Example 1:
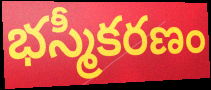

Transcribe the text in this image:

భస్మీకరణం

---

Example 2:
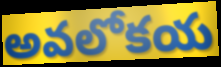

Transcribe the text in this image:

అవలోకయ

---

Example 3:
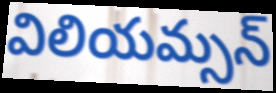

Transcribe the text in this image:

విలియమ్సన్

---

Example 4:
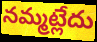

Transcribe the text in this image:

నమ్మట్లేదు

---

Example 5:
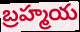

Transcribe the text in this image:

బ్రహ్మయ